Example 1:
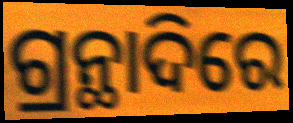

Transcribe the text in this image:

ଗ୍ରନ୍ଥାଦିରେ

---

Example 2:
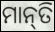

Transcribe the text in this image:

ମାନ୍‌ତି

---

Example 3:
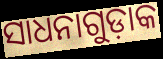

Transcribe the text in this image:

ସାଧନାଗୁଡ଼ାକ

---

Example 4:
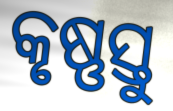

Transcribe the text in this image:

କୃଷ୍ଣସ୍ତୁ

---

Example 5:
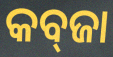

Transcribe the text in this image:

କବ୍‍ଜା